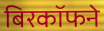
बिरकॉफने